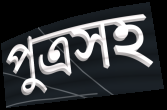
পুত্রসহ